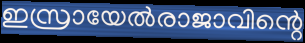
ഇസ്രായേൽരാജാവിന്റെ